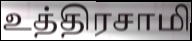
உத்திரசாமி